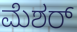
ಮೆಶರ್